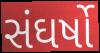
સંઘર્ષો